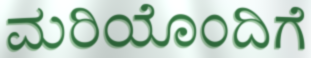
ಮರಿಯೊಂದಿಗೆ